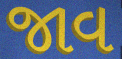
જાવ